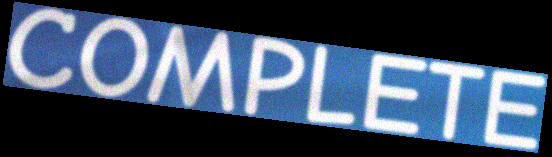
COMPLETE